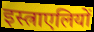
इस्त्राएलियों